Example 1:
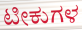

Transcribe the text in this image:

ಟೀಕುಗಳ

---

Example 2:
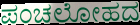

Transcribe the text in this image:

ಪಂಚಲೋಹದ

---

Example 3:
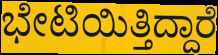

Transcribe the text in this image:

ಭೇಟಿಯಿತ್ತಿದ್ದಾರೆ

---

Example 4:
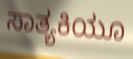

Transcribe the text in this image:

ಸಾತ್ಯಕಿಯೂ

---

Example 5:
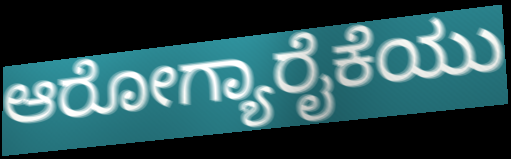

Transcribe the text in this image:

ಆರೋಗ್ಯಾರೈಕೆಯು